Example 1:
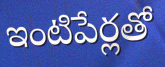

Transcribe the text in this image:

ఇంటిపేర్లతో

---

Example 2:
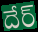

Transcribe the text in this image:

దేర్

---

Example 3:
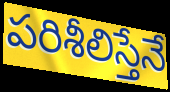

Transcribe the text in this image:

పరిశీలిస్తేనే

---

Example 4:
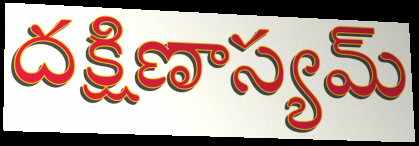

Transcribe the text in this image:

దక్షిణాస్యమ్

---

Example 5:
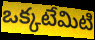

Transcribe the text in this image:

ఒక్కటేమిటి